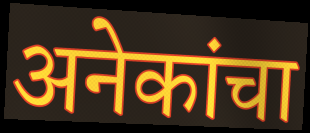
अनेकांचा